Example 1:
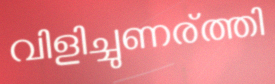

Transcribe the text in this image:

വിളിച്ചുണര്ത്തി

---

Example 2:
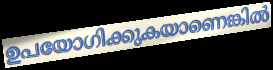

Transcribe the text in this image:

ഉപയോഗിക്കുകയാണെങ്കിൽ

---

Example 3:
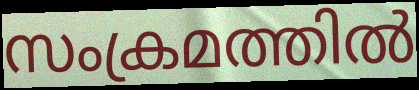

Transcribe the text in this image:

സംക്രമത്തിൽ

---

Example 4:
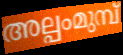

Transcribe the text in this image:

അല്പംമുമ്പ്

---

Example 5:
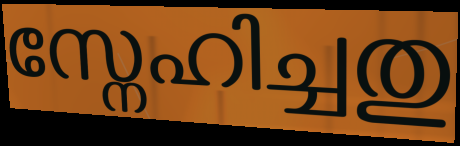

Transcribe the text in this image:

സ്നേഹിച്ചതു